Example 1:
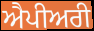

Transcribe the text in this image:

ਐਪੀਅਰੀ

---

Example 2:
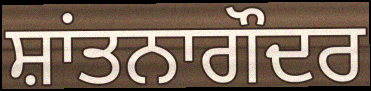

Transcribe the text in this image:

ਸ਼ਾਂਤਨਾਗੌਦਰ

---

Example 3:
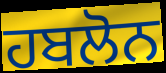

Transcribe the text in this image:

ਹਬਲੋਨ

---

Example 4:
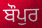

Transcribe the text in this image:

ਬੌਪੁਰ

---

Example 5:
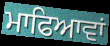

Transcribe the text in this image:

ਮਾਫਿਆਵਾਂ